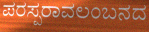
ಪರಸ್ಪರಾವಲಂಬನದ